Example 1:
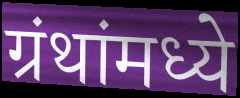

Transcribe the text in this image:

ग्रंथांमध्ये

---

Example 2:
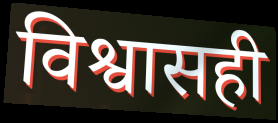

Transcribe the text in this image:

विश्वासही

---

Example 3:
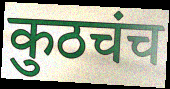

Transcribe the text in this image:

कुठचंच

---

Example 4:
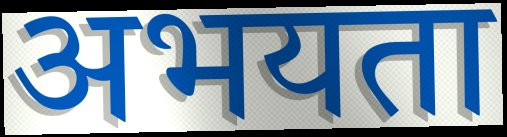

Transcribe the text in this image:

अभयता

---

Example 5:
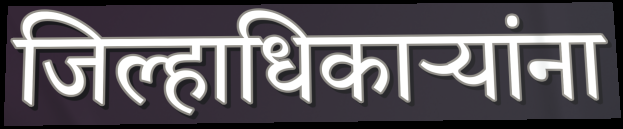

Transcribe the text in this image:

जिल्हाधिकाऱ्यांना